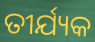
ତୀର୍ଯ୍ୟକ